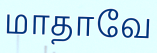
மாதாவே